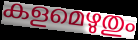
കളമെഴുതും